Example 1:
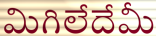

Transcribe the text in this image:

మిగిలేదేమీ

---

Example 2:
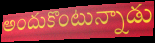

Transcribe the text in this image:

అందుకొంటున్నాడు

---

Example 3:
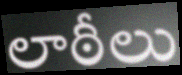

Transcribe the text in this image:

లాఠీలు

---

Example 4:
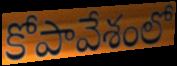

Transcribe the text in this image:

కోపావేశంలో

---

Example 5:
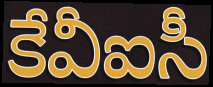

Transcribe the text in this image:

కేవీఐసీ